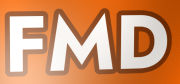
FMD